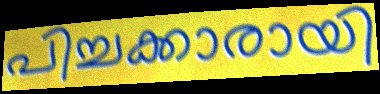
പിച്ചക്കാരായി